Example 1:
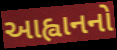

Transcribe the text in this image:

આહ્વાનનો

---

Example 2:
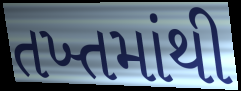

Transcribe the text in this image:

તખ્તમાંથી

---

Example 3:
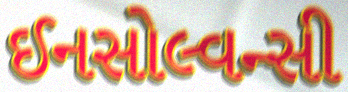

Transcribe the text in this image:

ઈનસોલ્વન્સી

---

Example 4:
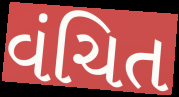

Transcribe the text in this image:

વંચિત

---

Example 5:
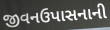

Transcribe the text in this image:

જીવનઉપાસનાની